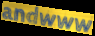
andwww